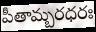
పీతామ్బరధరః